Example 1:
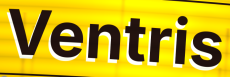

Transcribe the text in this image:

Ventris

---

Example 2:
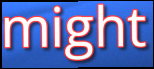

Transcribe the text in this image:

might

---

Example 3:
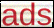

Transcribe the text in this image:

ads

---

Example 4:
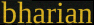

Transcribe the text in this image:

bharian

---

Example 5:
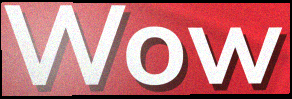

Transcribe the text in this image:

Wow